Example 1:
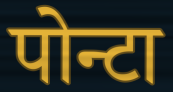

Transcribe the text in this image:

पोन्टा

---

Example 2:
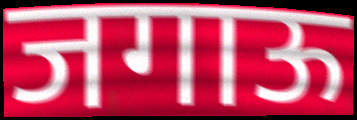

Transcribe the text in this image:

जगाऊ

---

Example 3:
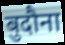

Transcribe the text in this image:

बुदौना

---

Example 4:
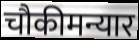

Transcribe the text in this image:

चौकीमन्यार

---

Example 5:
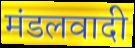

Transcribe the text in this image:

मंडलवादी